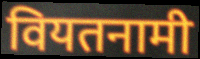
वियतनामी